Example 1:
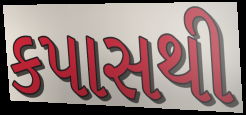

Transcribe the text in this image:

કપાસથી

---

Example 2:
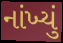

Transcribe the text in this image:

નાંખ્યું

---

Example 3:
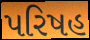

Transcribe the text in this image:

પરિષહ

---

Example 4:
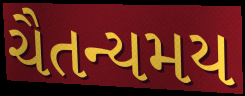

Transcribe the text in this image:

ચૈતન્યમય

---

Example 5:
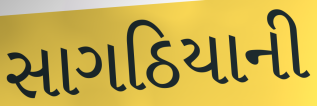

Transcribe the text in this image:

સાગઠિયાની